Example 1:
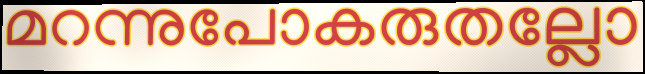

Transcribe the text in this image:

മറന്നുപോകരുതല്ലോ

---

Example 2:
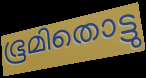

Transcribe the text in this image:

ഭൂമിതൊട്ടു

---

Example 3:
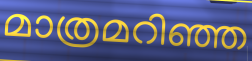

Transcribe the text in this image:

മാത്രമറിഞ്ഞ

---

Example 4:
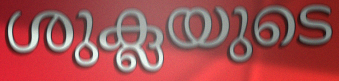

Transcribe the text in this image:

ശുക്ലയുടെ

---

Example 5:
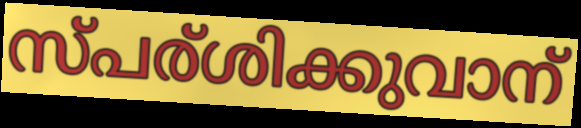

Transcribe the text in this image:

സ്പര്ശിക്കുവാന്